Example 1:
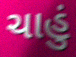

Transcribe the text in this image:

ચાહું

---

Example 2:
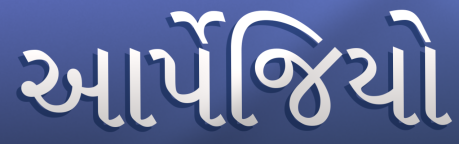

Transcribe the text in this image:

આર્પેજિયો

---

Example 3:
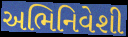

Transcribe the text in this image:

અભિનિવેશી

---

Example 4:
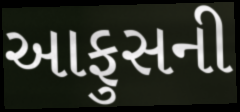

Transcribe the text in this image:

આફુસની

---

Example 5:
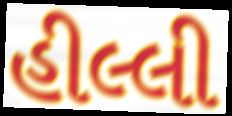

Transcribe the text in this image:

હીલ્લી